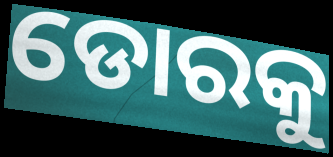
ଡୋରକୁ